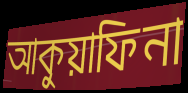
আকুয়াফিনা